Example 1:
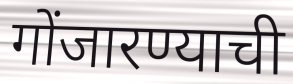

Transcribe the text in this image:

गोंजारण्याची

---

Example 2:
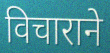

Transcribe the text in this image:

विचाराने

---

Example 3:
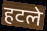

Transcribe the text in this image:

हटले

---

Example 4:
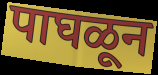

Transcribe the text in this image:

पाघळून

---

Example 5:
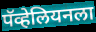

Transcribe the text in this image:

पॅव्हेलियनला